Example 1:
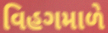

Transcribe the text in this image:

વિહગમાળે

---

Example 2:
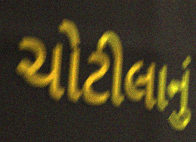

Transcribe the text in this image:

ચોટીલાનું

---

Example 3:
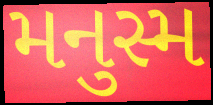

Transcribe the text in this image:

મનુસ્મ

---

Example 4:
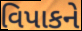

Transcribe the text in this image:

વિપાકને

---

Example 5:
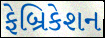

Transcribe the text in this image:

ફેબ્રિકેશન